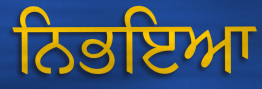
ਨਿਭਇਆ